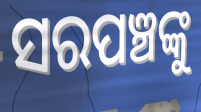
ସରପଞ୍ଚଙ୍କୁ